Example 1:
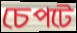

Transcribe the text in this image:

চেপটে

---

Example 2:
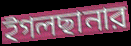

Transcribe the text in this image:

ইগলছানার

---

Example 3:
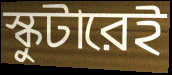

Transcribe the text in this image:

স্কুটারেই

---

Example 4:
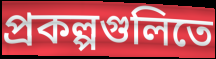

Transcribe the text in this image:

প্রকল্পগুলিতে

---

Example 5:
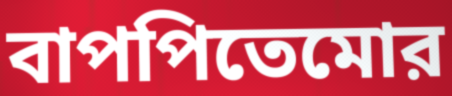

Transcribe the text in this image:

বাপপিতেমোর